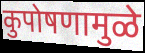
कुपोषणामुळे